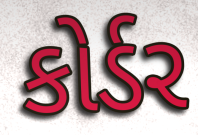
કોર્ડર